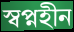
স্বপ্নহীন